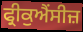
ਫ੍ਰੀਕੁਐਂਸੀਜ਼